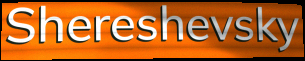
Shereshevsky